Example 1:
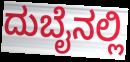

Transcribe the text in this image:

ದುಬೈನಲ್ಲಿ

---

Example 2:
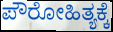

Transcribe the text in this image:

ಪೌರೋಹಿತ್ಯಕ್ಕೆ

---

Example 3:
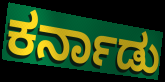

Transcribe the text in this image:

ಕರ್ನಾಡು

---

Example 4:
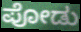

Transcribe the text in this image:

ಪೋಡು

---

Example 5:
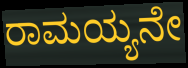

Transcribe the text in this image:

ರಾಮಯ್ಯನೇ